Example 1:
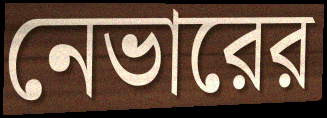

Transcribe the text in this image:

নেভারের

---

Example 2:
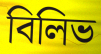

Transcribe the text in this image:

বিলিভ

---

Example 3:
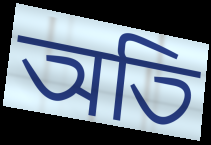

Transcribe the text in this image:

অতি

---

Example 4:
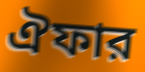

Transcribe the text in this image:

ঐফার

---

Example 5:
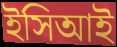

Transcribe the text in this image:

ইসিআই